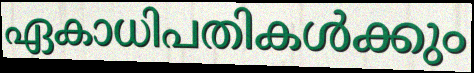
ഏകാധിപതികൾക്കും